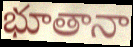
భూతానా